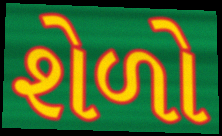
શેળો